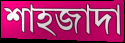
শাহজাদা